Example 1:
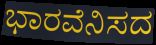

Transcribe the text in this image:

ಭಾರವೆನಿಸದ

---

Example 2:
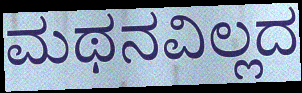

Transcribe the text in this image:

ಮಥನವಿಲ್ಲದ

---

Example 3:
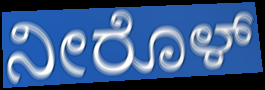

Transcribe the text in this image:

ನೀರೊಳ್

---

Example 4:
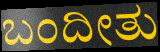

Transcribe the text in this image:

ಬಂದೀತು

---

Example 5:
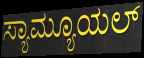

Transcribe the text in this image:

ಸ್ಯಾಮ್ಯೂಯಲ್